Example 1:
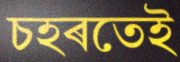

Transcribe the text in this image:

চহৰতেই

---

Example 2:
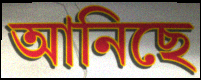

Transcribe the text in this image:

আনিছে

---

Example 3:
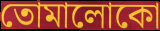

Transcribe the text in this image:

তোমালোকো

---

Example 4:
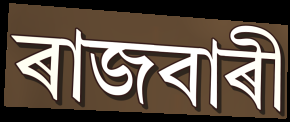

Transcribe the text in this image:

ৰাজবাৰী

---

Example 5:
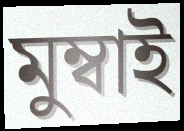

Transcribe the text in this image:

মুম্বাই